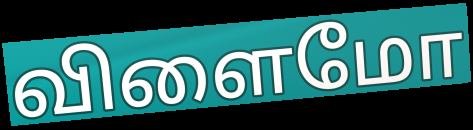
விளைமோ